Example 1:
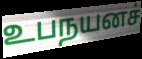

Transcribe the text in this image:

உபநயனச்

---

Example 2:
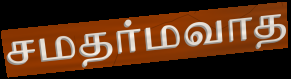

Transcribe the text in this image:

சமதர்மவாத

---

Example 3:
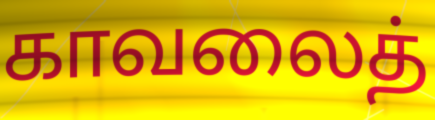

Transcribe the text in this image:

காவலைத்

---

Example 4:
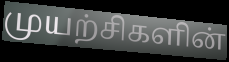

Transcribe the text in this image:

முயற்சிகளின்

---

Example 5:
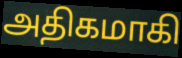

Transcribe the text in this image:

அதிகமாகி